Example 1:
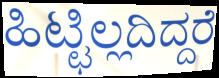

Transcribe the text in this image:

ಹಿಟ್ಟಿಲ್ಲದಿದ್ದರೆ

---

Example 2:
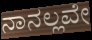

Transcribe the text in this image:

ನಾನಲ್ಲವೇ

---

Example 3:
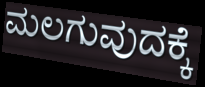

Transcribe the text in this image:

ಮಲಗುವುದಕ್ಕೆ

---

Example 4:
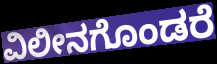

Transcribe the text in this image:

ವಿಲೀನಗೊಂಡರೆ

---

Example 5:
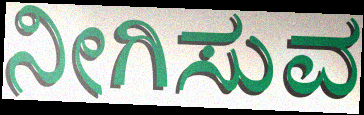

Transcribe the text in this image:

ನೀಗಿಸುವ